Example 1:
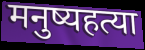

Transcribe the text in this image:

मनुष्यहत्या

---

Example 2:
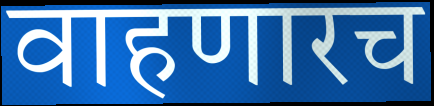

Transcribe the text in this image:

वाहणारच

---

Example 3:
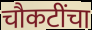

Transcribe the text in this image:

चौकटींचा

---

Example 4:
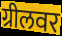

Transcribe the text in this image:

ग्रीलवर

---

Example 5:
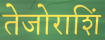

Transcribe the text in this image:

तेजोराशिं